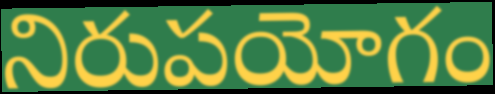
నిరుపయోగం